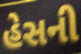
હેસની